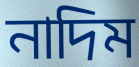
নাদিম